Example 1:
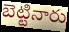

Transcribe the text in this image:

బెట్టినారు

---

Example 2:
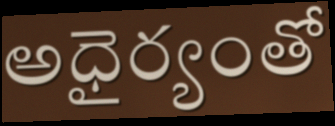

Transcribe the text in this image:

అధైర్యంతో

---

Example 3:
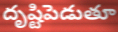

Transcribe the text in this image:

దృష్టిపెడుతూ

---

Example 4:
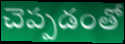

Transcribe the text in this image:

చెప్పడంతో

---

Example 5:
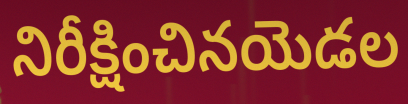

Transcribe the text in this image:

నిరీక్షించినయెడల